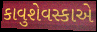
કાવુશેવસ્કાએ